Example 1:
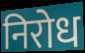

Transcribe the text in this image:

निरोध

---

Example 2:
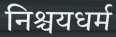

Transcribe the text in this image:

निश्चयधर्म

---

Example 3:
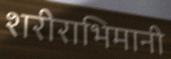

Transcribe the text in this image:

शरीराभिमानी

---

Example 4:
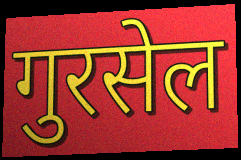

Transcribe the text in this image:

गुरसेल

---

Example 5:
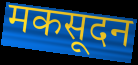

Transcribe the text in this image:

मकसूदन